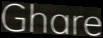
Ghare